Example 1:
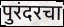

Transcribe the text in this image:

पुरंदरचा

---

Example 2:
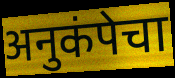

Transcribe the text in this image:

अनुकंपेचा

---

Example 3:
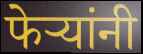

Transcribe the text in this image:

फेऱ्यांनी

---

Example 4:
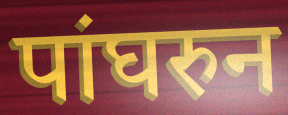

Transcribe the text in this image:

पांघरुन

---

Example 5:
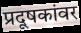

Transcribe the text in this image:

प्रदूषकांवर